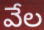
వేల